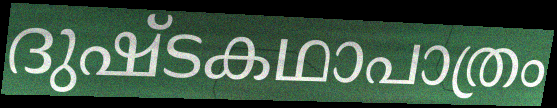
ദുഷ്ടകഥാപാത്രം